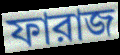
ফারাজ